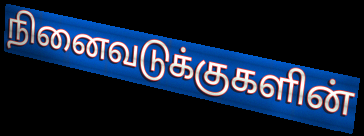
நினைவடுக்குகளின்